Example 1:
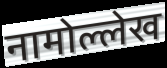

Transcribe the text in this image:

नामोल्लेख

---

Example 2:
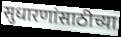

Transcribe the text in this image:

सुधारणांसाठीच्या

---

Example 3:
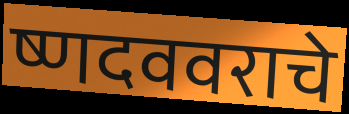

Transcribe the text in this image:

ष्णदववराचे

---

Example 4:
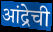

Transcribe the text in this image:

आंद्रेची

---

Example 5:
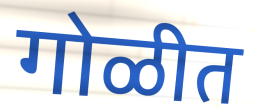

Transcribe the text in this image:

गोळीत